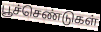
பூச்செண்டுகள்